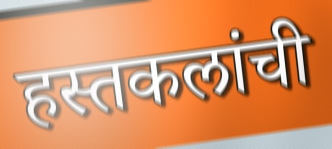
हस्तकलांची